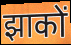
झाकों